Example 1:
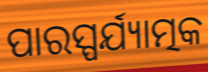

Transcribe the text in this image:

ପାରସ୍ପର୍ଯ୍ୟାତ୍ମକ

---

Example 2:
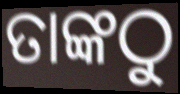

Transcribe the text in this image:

ତାଙ୍କଠୁ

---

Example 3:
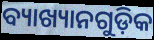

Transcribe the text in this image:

ବ୍ୟାଖ୍ୟାନଗୁଡ଼ିକ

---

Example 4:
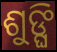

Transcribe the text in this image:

ଶୁଙ୍ଘି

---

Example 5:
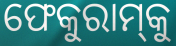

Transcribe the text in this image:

ଫେକୁରାମ୍‌କୁ